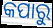
କପାରୁ